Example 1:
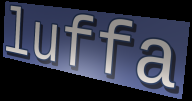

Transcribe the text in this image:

luffa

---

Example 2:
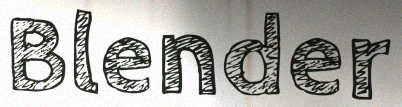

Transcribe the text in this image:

Blender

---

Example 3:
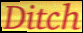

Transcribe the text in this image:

Ditch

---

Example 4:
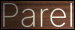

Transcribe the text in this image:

Parel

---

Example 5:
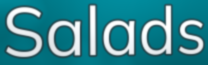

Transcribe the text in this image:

Salads